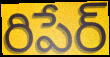
రిపేర్